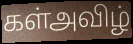
கள்அவிழ்